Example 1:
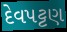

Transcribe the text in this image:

દેવપટ્ટણ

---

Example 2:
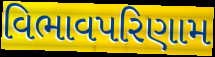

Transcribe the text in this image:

વિભાવપરિણામ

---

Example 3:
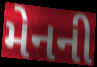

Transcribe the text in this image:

મેનની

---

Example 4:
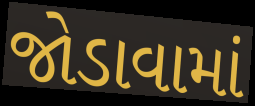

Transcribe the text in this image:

જોડાવામાં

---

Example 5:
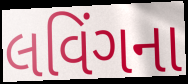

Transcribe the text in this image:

લવિંગના